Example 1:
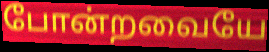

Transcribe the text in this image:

போன்றவையே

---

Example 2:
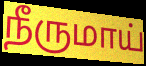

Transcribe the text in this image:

நீருமாய்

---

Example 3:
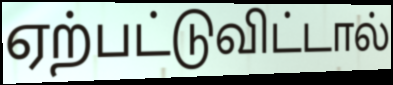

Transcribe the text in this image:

ஏற்பட்டுவிட்டால்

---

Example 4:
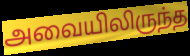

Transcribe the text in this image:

அவையிலிருந்த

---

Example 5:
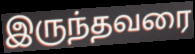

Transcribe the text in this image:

இருந்தவரை